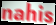
nahis